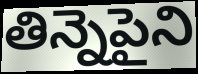
తిన్నెపైని